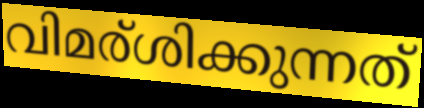
വിമര്ശിക്കുന്നത്